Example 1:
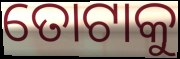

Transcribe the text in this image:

ତୋଟାକୁ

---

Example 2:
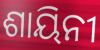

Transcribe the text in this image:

ଶାୟିନୀ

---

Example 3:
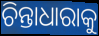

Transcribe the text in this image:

ଚିନ୍ତାଧାରାକୁ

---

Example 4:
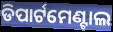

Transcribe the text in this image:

ଡିପାର୍ଟମେଣ୍ଟାଲ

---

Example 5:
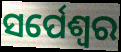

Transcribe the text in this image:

ସର୍ପେଶ୍ଵର